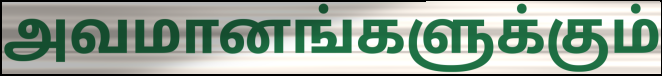
அவமானங்களுக்கும்